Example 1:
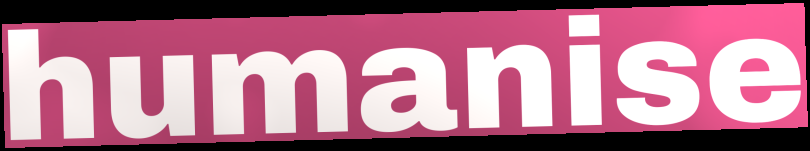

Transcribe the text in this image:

humanise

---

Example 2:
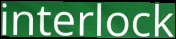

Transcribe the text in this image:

interlock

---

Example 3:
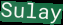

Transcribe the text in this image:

Sulay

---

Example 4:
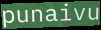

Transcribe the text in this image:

punaivu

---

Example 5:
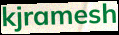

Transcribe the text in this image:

kjramesh